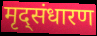
मृद्संधारण